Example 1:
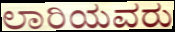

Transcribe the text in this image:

ಲಾರಿಯವರು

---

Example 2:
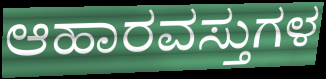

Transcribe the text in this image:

ಆಹಾರವಸ್ತುಗಳ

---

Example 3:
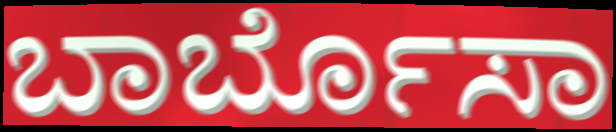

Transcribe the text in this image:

ಬಾರ್ಬೊಸಾ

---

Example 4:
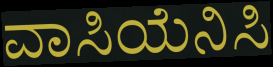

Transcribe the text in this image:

ವಾಸಿಯೆನಿಸಿ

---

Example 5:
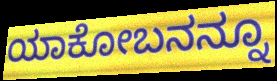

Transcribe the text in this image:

ಯಾಕೋಬನನ್ನೂ